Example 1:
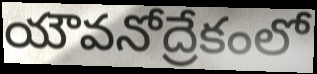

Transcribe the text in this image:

యౌవనోద్రేకంలో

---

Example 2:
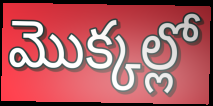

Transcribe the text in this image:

మొక్కల్లో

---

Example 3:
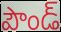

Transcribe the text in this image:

పౌండ్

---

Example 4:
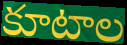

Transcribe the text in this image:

కూటాల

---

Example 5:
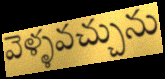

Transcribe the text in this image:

వెళ్ళవచ్చును